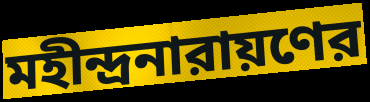
মহীন্দ্রনারায়ণের